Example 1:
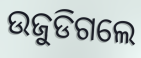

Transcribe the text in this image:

ଉଜୁଡିଗଲେ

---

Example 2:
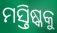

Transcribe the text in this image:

ମସ୍ତିଷ୍କକୁ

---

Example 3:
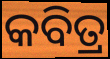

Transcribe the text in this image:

କବିତ୍ର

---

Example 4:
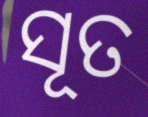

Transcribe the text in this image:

ସୂତ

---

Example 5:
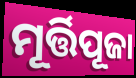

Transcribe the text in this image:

ମୂର୍ତ୍ତିପୂଜା